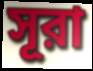
সূরা